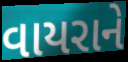
વાયરાને